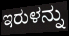
ಇರುಳನ್ನು